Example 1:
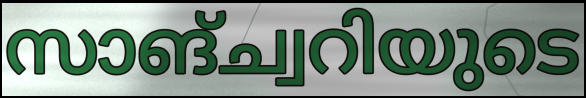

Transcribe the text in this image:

സാങ്ച്വറിയുടെ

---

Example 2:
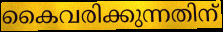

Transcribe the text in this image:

കൈവരിക്കുന്നതിന്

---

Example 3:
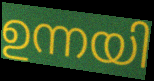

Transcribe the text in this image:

ഉന്നയി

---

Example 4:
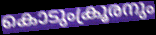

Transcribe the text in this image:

കൊടുംക്രൂരനും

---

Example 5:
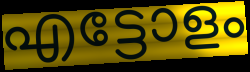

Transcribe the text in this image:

എട്ടോളം